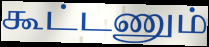
கூட்டணும்